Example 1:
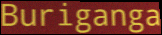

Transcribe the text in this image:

Buriganga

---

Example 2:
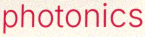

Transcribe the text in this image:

photonics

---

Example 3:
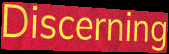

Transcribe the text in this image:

Discerning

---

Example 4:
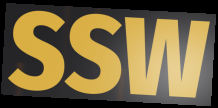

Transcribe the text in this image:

SSW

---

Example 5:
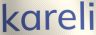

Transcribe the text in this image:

kareli